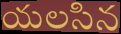
యలసిన